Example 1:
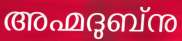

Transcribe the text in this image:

അഹ്മദുബ്നു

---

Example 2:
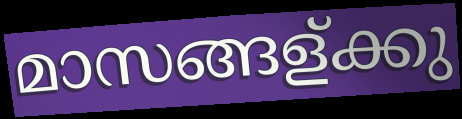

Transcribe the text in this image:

മാസങ്ങള്ക്കു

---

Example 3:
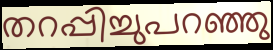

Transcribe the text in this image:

തറപ്പിച്ചുപറഞ്ഞു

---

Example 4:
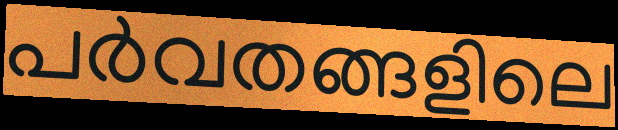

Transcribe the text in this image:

പർവതങ്ങളിലെ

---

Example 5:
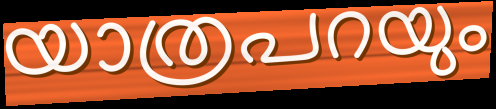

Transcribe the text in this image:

യാത്രപറയും